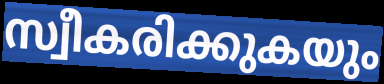
സ്വീകരിക്കുകയും